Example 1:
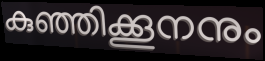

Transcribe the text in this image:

കുഞ്ഞിക്കൂനനും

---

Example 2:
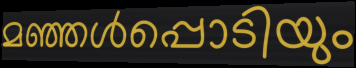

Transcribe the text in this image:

മഞ്ഞൾപ്പൊടിയും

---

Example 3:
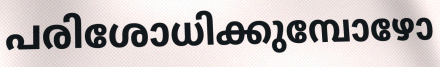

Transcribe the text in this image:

പരിശോധിക്കുമ്പോഴോ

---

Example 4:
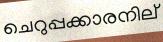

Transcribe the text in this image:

ചെറുപ്പക്കാരനില്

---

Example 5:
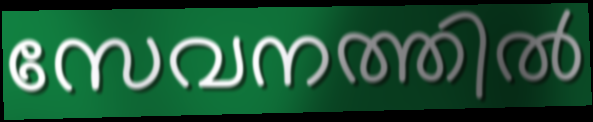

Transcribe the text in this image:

സേവനത്തിൽ